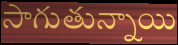
సాగుతున్నాయి